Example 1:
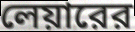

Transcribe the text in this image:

লেয়ারের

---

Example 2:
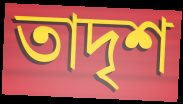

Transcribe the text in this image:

তাদৃশ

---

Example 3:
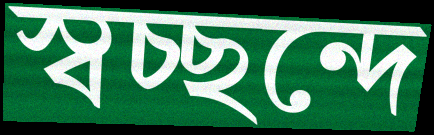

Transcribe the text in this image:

স্বচ্ছন্দে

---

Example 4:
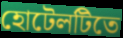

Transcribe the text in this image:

হোটেলটিতে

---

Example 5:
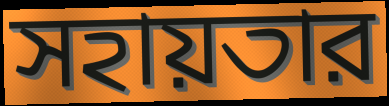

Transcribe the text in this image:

সহায়তার